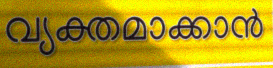
വ്യക്തമാക്കാൻ